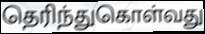
தெரிந்துகொள்வது